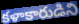
కళాకారుడిని